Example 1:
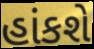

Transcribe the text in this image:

હાંકશે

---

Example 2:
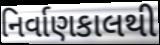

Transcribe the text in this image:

નિર્વાણકાલથી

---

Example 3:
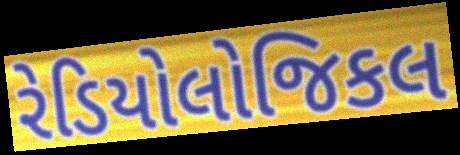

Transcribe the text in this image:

રેડિયોલોજિકલ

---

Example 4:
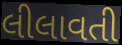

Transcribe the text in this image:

લીલાવતી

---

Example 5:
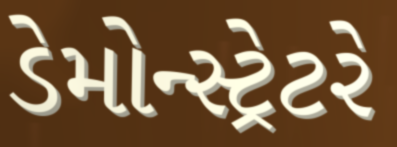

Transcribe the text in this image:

ડેમોન્સ્ટ્રેટરે